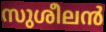
സുശീലൻ